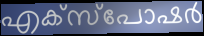
എക്സ്പോഷർ